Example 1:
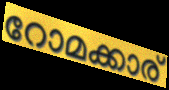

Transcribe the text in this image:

റോമക്കാര്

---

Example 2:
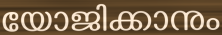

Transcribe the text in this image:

യോജിക്കാനും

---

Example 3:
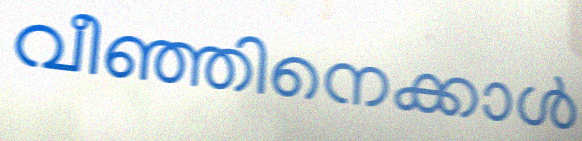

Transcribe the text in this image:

വീഞ്ഞിനെക്കാൾ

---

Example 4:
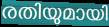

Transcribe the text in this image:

രതിയുമായി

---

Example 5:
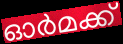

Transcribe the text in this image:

ഓർമക്ക്